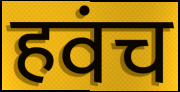
हवंच